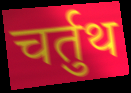
चर्तुथ